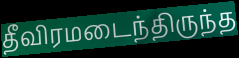
தீவிரமடைந்திருந்த